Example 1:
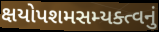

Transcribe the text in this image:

ક્ષયોપશમસમ્યક્ત્વનું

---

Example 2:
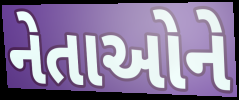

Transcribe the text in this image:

નેતાઓને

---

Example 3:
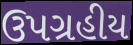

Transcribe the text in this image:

ઉપગ્રહીય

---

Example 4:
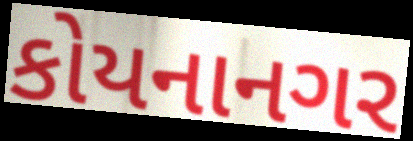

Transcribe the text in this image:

કોયનાનગર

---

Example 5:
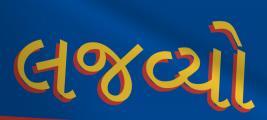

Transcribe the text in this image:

લજવ્યો